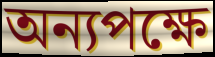
অন্যপক্ষে